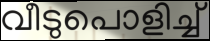
വീടുപൊളിച്ച്